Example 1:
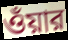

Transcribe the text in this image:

ওঁয়ার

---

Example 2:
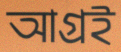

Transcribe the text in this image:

আগ্রই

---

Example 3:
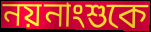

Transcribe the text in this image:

নয়নাংশুকে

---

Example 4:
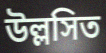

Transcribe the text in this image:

উল্লসিত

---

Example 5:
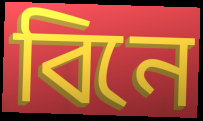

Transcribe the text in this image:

বিনে